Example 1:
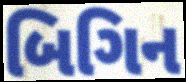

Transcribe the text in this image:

બિગિન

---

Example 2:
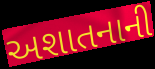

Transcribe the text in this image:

અશાતનાની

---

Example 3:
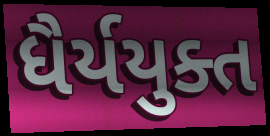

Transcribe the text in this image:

ધૈર્યયુક્ત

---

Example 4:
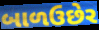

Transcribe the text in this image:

બાળઉછેર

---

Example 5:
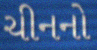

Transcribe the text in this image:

ચીનનો